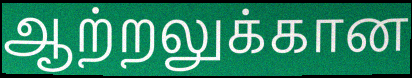
ஆற்றலுக்கான